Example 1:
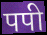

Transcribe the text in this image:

पपी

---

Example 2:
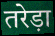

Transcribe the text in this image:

तरेड़ा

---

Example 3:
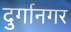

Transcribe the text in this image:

दुर्गानगर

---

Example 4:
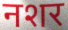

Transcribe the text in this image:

नशर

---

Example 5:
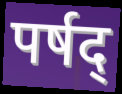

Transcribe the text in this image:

पर्षद्